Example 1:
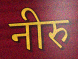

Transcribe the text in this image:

नीरु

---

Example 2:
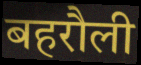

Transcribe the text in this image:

बहरौली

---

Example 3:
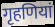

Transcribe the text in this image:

गृहणियां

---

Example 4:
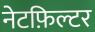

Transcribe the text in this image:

नेटफ़िल्टर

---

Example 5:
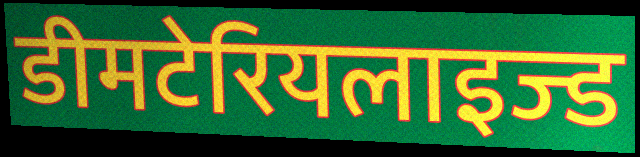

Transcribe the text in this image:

डीमटेरियलाइज्ड